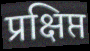
प्रक्षिप्त